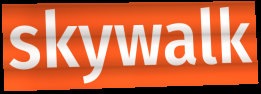
skywalk